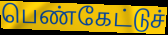
பெண்கேட்டுச்